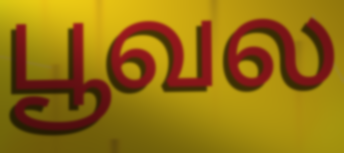
பூவல